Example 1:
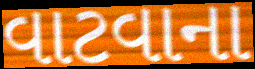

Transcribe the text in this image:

વાટવાના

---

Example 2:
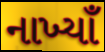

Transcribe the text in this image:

નાખ્યાઁ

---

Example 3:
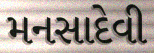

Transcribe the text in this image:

મનસાદેવી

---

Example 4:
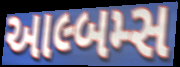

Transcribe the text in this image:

આલ્બમ્સ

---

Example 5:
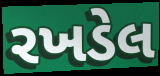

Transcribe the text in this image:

રખડેલ